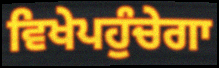
ਵਿਖੇਪਹੁੰਚੇਗਾ